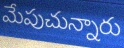
మేపుచున్నారు